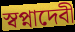
স্বপ্নাদেবী